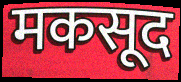
मकसूद